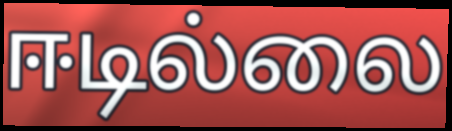
ஈடில்லை